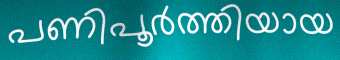
പണിപൂർത്തിയായ